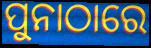
ପୁନାଠାରେ